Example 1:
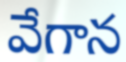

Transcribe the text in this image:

వేగాన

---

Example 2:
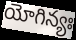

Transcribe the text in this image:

యోగిన్యః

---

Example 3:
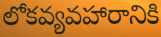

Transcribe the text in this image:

లోకవ్యవహారానికి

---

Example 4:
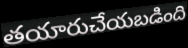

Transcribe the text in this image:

తయారుచేయబడింది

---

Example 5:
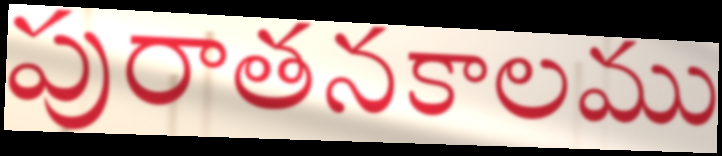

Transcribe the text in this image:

పురాతనకాలము